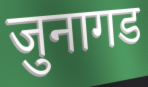
जुनागड